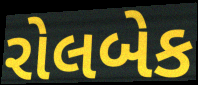
રોલબેક